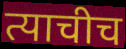
त्याचीच